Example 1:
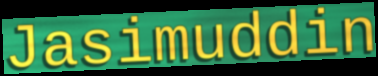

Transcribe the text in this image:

Jasimuddin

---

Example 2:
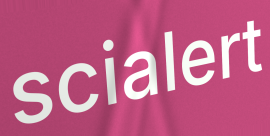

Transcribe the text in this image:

scialert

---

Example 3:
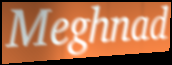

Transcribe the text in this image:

Meghnad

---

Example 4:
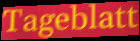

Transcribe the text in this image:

Tageblatt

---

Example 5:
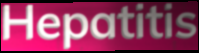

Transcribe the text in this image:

Hepatitis